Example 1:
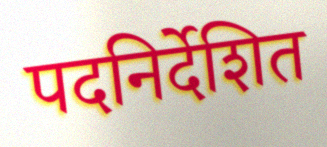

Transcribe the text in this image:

पदनिर्देशित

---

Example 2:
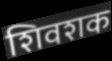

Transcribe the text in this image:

शिवशक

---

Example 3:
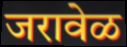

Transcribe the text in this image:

जरावेळ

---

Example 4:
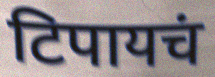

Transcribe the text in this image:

टिपायचं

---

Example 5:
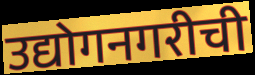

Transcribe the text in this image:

उद्योगनगरीची